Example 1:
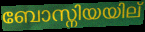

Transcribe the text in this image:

ബോസ്നിയയില്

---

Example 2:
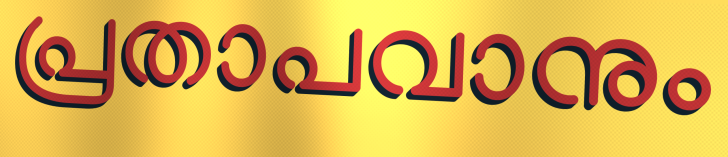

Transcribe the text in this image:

പ്രതാപവാനും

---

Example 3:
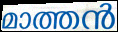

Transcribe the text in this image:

മാത്തൻ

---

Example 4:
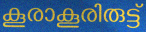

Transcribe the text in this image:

കൂരാകൂരിരുട്ട്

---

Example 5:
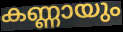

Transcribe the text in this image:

കണ്ണായും